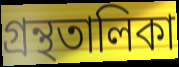
গ্ৰন্থতালিকা